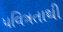
પવિત્રતાથી